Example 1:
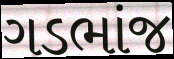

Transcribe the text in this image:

ગડભાંજ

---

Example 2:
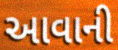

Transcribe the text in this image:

આવાની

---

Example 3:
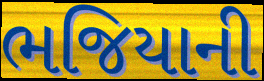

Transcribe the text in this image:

ભજિયાની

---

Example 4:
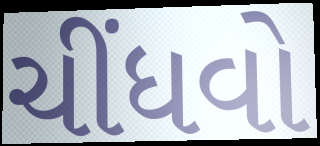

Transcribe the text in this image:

ચીંધવો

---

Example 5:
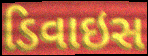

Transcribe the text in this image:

ડિવાઇસ